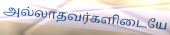
அல்லாதவர்களிடையே